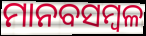
ମାନବସମ୍ବଳ